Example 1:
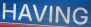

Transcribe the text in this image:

HAVING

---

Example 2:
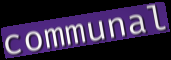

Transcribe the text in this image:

communal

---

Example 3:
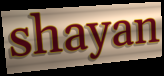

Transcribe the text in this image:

shayan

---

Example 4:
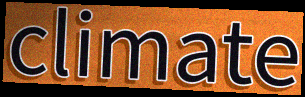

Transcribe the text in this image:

climate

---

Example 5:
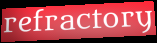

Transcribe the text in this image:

refractory